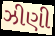
ઝીણી